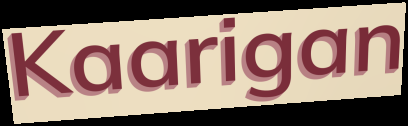
Kaarigan